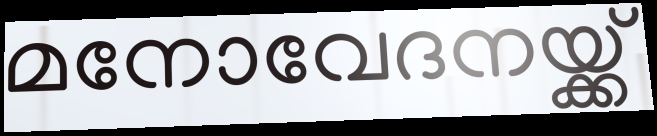
മനോവേദനയ്ക്ക്